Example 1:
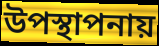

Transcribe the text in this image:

উপস্থাপনায়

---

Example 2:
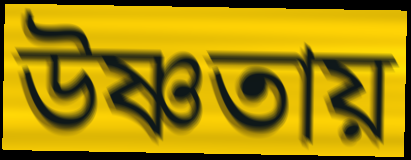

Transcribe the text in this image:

উষ্ণতায়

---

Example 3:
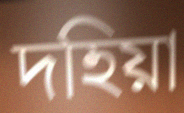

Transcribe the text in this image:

দহিয়া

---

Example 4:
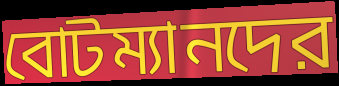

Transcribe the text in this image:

বোটম্যানদের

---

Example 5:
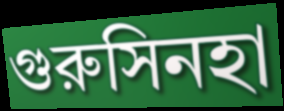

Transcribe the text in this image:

গুরুসিনহা